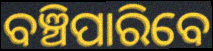
ବଞ୍ଚିପାରିବେ